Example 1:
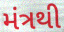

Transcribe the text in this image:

મંત્રથી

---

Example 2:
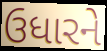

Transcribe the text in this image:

ઉધારને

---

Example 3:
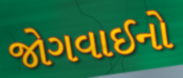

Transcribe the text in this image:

જોગવાઈનો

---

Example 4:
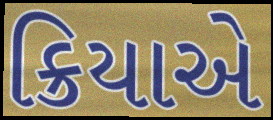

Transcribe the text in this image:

ક્રિયાએ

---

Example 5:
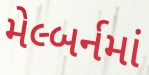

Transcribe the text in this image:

મેલ્બર્નમાં